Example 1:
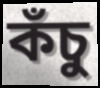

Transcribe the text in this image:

কঁচু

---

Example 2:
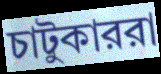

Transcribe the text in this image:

চাটুকাররা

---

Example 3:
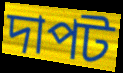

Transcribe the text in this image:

দাপট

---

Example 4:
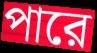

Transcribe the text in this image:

পারে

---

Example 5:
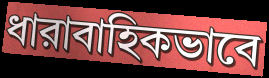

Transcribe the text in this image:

ধারাবাহিকভাবে